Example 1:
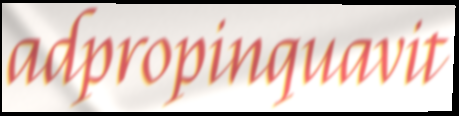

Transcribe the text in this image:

adpropinquavit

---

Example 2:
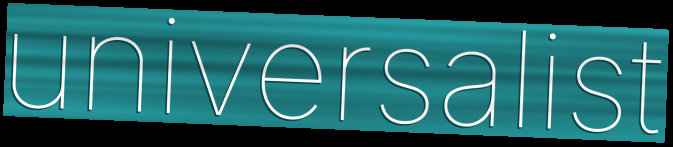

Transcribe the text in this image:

universalist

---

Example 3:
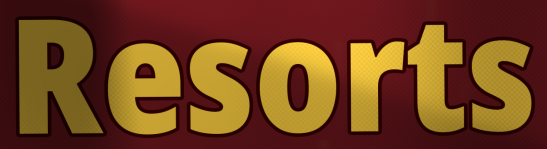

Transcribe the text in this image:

Resorts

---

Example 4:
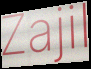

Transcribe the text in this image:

Zajil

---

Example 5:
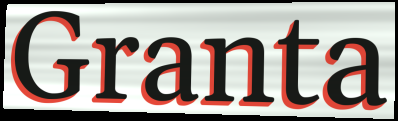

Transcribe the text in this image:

Granta